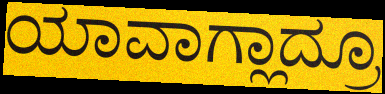
ಯಾವಾಗ್ಲಾದ್ರೂ